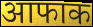
आफाक